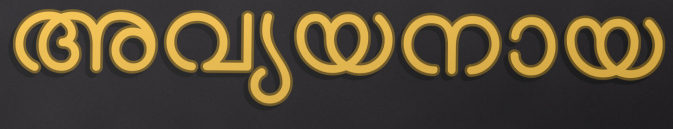
അവ്യയനായ